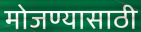
मोजण्यासाठी